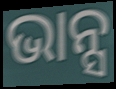
ଭାନ୍ସ